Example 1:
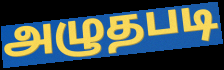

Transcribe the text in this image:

அழுதபடி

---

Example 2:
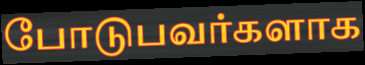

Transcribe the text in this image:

போடுபவர்களாக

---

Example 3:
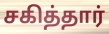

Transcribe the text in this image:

சகித்தார்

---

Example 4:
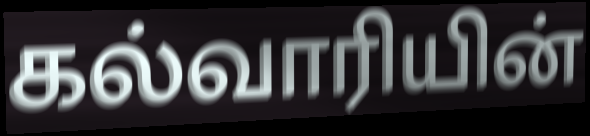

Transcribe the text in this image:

கல்வாரியின்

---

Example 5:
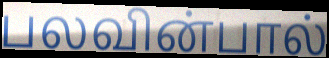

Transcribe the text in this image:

பலவின்பால்